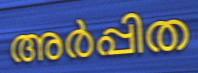
അർപ്പിത